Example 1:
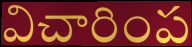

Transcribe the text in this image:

విచారింప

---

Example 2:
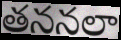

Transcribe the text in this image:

తననలా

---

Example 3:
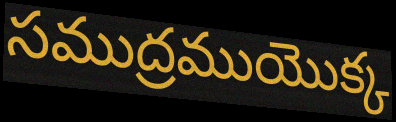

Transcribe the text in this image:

సముద్రముయొక్క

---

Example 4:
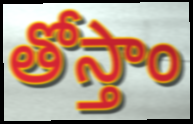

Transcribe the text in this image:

తోస్తాం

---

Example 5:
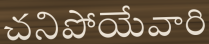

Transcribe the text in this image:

చనిపోయేవారి